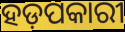
ହଡ଼ପକାରୀ